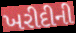
ખરીદીની